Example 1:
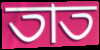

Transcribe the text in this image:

তাত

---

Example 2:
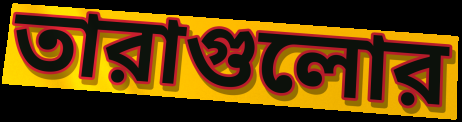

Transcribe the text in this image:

তারাগুলোর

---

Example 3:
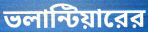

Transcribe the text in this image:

ভলান্টিয়ারের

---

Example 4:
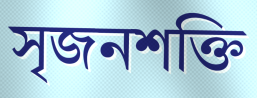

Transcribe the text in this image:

সৃজনশক্তি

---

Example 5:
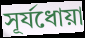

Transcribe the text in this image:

সূর্যধোয়া